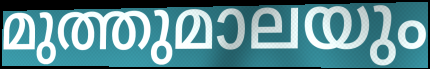
മുത്തുമാലയും